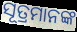
ସୂତ୍ରମାନଙ୍କ